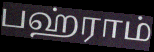
பஹ்ராம்